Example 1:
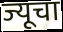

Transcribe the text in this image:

ज्यूचा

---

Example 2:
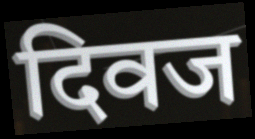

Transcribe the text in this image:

दिवज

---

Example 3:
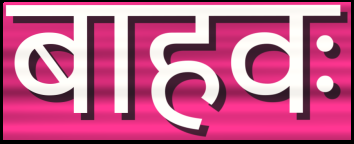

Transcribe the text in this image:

बाहवः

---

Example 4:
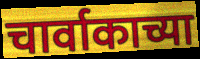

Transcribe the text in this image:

चार्वाकाच्या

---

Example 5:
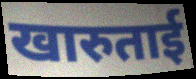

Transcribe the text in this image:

खारुताई